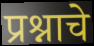
प्रश्नाचे